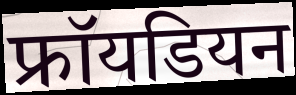
फ्रॉयडियन